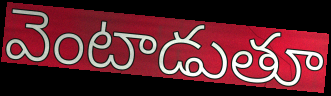
వెంటాడుతూ